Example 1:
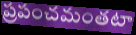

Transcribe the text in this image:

ప్రపంచమంతటా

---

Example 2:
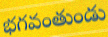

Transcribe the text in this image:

భగవంతుండు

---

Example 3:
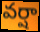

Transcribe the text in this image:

వర్షా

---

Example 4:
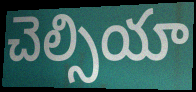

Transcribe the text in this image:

చెల్సియా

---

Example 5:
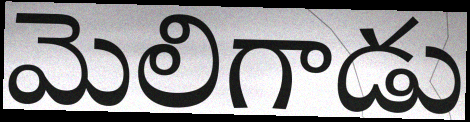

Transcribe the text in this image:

మెలిగాడు